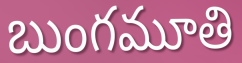
బుంగమూతి